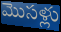
మొసళ్లు